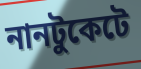
নানটুকেটে